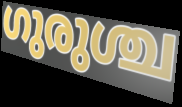
ഗുരുശ്ച